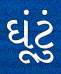
ઘૂંટું